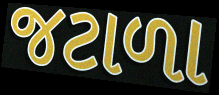
જટાળા